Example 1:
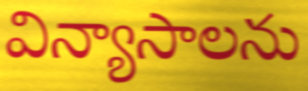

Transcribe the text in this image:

విన్యాసాలను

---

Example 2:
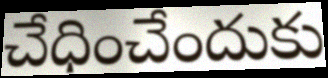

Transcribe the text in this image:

చేధించేందుకు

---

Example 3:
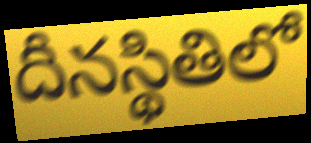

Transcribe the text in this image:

దీనస్థితిలో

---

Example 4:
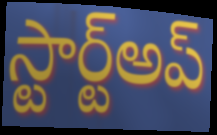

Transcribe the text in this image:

స్టార్ట్అప్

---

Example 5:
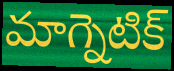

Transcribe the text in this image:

మాగ్నెటిక్